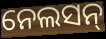
ନେଲସନ୍